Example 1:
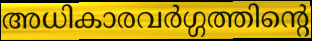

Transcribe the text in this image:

അധികാരവർഗ്ഗത്തിന്റെ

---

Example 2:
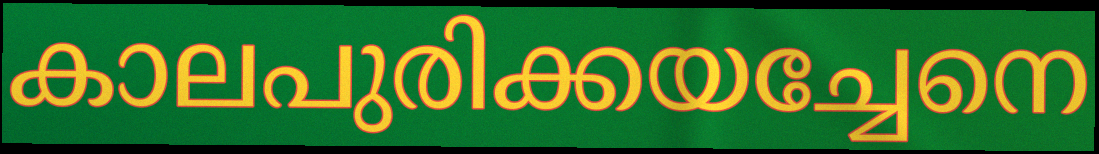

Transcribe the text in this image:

കാലപുരിക്കയച്ചേനെ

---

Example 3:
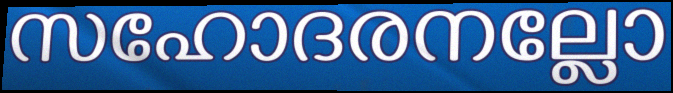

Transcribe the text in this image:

സഹോദരനല്ലോ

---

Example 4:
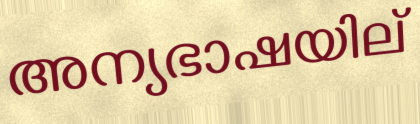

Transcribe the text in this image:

അന്യഭാഷയില്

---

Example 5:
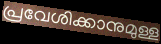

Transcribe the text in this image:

പ്രവേശിക്കാനുമുള്ള